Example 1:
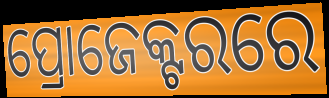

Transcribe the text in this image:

ପ୍ରୋଜେକ୍ଟରରେ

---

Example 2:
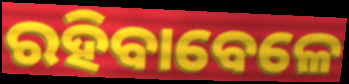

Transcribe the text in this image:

ରହିବାବେଳେ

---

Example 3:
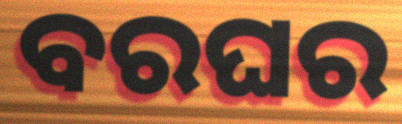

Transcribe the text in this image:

ବରଘର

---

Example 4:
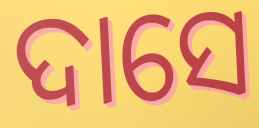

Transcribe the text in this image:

ଦାସେ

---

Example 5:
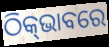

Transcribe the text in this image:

ଠିକ୍‌ଭାବରେ